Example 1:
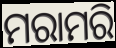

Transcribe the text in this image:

ମରାମରି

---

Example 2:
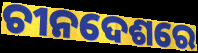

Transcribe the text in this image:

ଚୀନଦେଶରେ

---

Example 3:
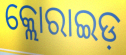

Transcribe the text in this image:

କ୍ଲୋରାଇଡ଼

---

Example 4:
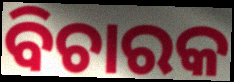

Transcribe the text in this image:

ବିଚାରକ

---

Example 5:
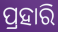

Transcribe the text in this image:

ପ୍ରହାରି